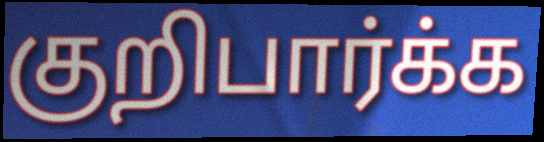
குறிபார்க்க